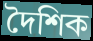
দৈশিক